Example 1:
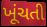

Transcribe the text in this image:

ખૂંચતી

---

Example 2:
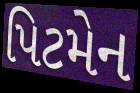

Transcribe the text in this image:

પિટમેન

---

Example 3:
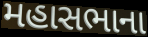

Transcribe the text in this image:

મહાસભાના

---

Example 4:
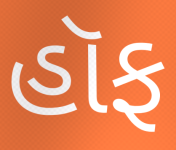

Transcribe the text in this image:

હૉફ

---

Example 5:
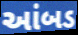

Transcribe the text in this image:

આંબડ